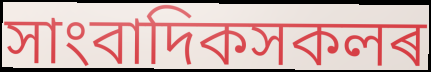
সাংবাদিকসকলৰ